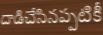
దాడిచేసినప్పటికీ